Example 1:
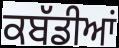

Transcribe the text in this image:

ਕਬੱਡੀਆਂ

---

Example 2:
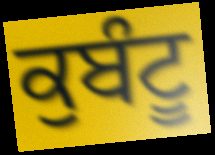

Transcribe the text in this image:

ਕੁਬੰਟੂ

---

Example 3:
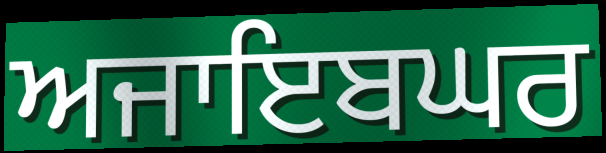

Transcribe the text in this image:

ਅਜਾਇਬਘਰ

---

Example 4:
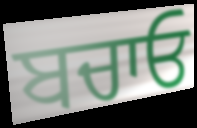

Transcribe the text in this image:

ਬਚਾਓ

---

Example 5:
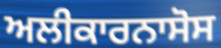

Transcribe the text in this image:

ਅਲੀਕਾਰਨਾਸੋਸ